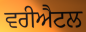
ਵਰੀਐਟਲ